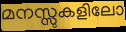
മനസ്സുകളിലോ